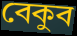
বেকুব